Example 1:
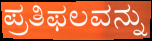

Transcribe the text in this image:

ಪ್ರತಿಫಲವನ್ನು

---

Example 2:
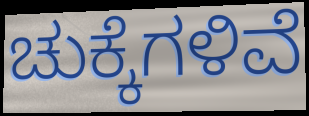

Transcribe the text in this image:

ಚುಕ್ಕೆಗಳಿವೆ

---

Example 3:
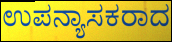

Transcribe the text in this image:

ಉಪನ್ಯಾಸಕರಾದ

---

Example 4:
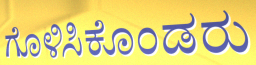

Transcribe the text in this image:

ಗೊಳಿಸಿಕೊಂಡರು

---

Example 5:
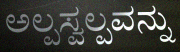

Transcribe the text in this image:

ಅಲ್ಪಸ್ವಲ್ಪವನ್ನು